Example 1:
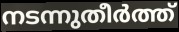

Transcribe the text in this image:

നടന്നുതീർത്ത്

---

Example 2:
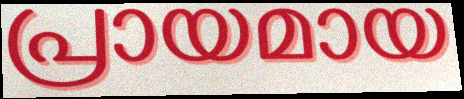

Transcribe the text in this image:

പ്രായമായ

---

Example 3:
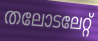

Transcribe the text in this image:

തലോടലേറ്റ്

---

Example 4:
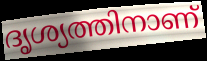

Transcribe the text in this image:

ദൃശ്യത്തിനാണ്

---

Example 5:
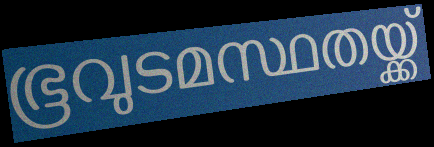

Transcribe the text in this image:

ഭൂവുടമസ്ഥതയ്ക്ക്